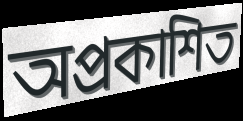
অপ্রকাশিত